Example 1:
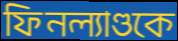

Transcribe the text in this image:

ফিনল্যাণ্ডকে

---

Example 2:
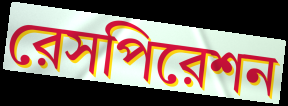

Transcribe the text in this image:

রেসপিরেশন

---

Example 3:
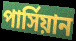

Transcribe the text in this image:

পার্সিয়ান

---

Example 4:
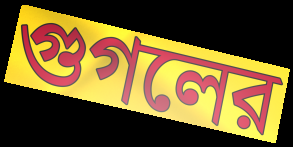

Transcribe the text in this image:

গুগলের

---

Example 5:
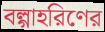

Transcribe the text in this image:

বল্গাহরিণের